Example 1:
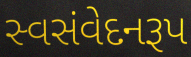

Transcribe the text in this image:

સ્વસંવેદનરૂપ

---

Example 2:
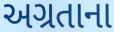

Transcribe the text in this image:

અગ્રતાના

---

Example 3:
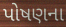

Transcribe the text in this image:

પોષણના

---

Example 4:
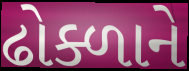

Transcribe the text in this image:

ઢોક્ળાને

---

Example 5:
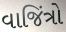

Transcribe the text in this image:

વાજિંત્રો